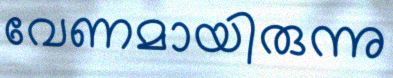
വേണമായിരുന്നു